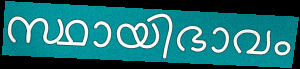
സ്ഥായിഭാവം